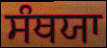
ਸੰਥਯਾ